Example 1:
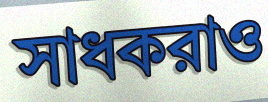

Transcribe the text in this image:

সাধকরাও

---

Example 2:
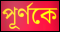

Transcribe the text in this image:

পূর্ণকে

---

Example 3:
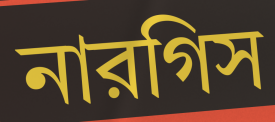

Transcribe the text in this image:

নারগিস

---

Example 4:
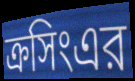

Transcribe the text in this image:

ক্রসিংএর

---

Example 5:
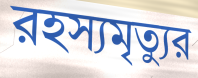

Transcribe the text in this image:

রহস্যমৃত্যুর